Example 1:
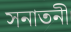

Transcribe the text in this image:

সনাতনী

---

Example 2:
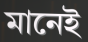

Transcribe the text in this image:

মানেই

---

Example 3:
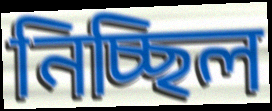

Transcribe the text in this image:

নিচ্ছিল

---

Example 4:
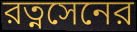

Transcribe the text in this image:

রত্নসেনের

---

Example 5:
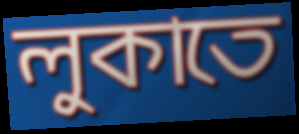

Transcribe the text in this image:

লুকাতে